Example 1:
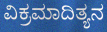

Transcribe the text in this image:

ವಿಕ್ರಮಾದಿತ್ಯನ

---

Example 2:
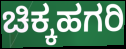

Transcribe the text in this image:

ಚಿಕ್ಕಹಗರಿ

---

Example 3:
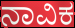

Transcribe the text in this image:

ನಾವಿಕ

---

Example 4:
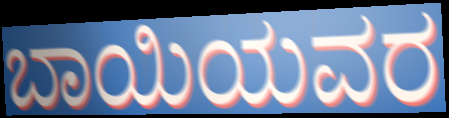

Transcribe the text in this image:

ಬಾಯಿಯವರ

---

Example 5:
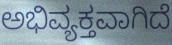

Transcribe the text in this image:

ಅಭಿವ್ಯಕ್ತವಾಗಿದೆ